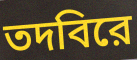
তদবিরে